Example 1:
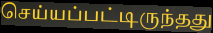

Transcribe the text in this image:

செய்யப்பட்டிருந்தது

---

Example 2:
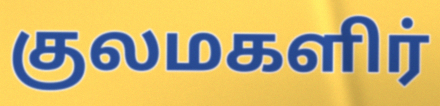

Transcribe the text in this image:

குலமகளிர்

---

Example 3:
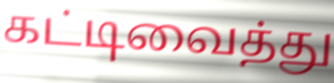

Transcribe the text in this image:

கட்டிவைத்து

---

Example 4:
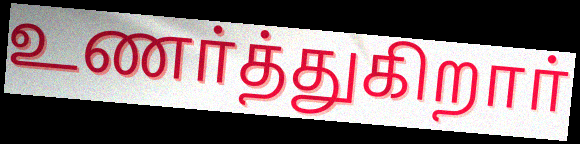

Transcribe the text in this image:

உணர்த்துகிறார்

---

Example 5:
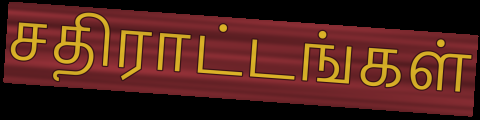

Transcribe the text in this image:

சதிராட்டங்கள்